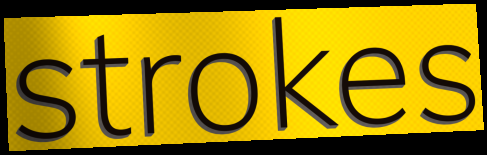
strokes